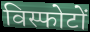
विस्फोटों